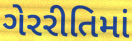
ગેરરીતિમાં